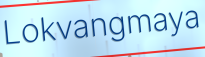
Lokvangmaya